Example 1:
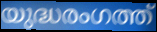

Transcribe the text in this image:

യുദ്ധരംഗത്ത്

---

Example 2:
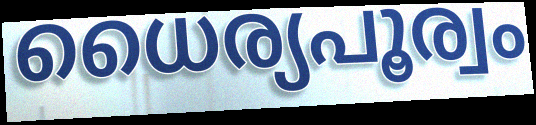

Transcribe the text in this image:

ധൈര്യപൂര്വം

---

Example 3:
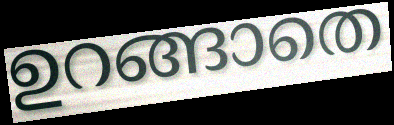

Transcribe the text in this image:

ഉറങ്ങാതെ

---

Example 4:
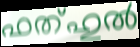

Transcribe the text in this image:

ഫത്ഹുൽ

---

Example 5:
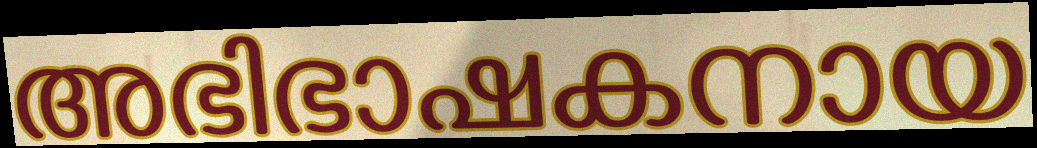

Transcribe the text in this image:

അഭിഭാഷകനായ